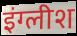
इंग्लीश